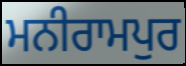
ਮਨੀਰਾਮਪੁਰ